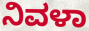
ನಿವಳಾ